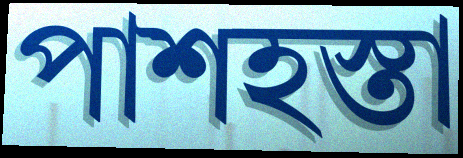
পাশহস্তা